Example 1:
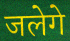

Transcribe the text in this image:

जलेगे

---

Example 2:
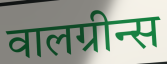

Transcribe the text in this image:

वालग्रीन्स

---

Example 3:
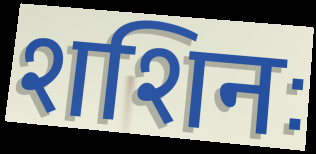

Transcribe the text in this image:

शशिनः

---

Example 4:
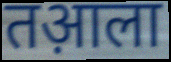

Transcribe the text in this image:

तआ़ला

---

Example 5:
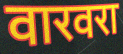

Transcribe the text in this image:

वारवरा